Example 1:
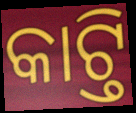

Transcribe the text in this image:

କାଟ୍ତି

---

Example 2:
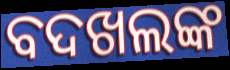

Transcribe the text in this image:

ବଦଖଲଙ୍କ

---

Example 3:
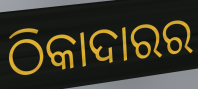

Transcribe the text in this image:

ଠିକାଦାରର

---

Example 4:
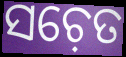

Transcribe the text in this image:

ସଚ଼େତ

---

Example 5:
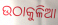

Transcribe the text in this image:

ଉଠାକୁଳିଆ